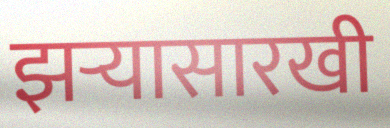
झर्‍यासारखी